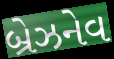
બ્રેઝનેવ